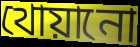
থোয়ানো